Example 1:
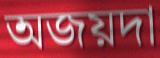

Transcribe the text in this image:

অজয়দা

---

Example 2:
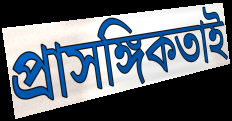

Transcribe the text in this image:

প্রাসঙ্গিকতাই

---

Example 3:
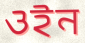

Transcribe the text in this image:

ওইন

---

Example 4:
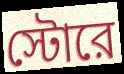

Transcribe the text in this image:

স্টোরে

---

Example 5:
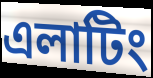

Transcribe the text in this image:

এলাটিং